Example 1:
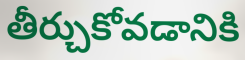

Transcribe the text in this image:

తీర్చుకోవడానికి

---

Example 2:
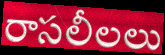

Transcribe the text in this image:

రాసలీలలు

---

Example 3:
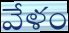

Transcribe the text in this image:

వేళం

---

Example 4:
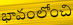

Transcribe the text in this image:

భావంలోంచి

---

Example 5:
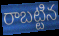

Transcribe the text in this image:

రాబట్టిన